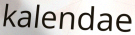
kalendae